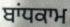
ਬਾਂਧਕਾਮ